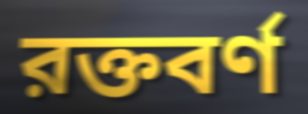
রক্তবর্ণ